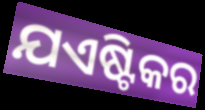
ଯଏଷ୍ଟିକର